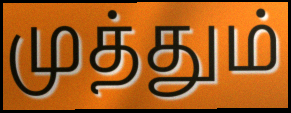
முத்தும்